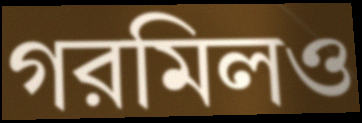
গরমিলও